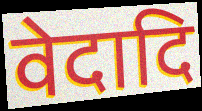
वेदादि